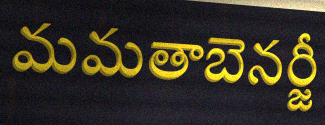
మమతాబెనర్జీ